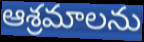
ఆశ్రమాలను